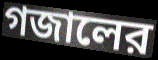
গজালের